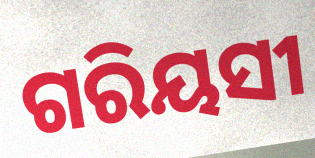
ଗରିୟସୀ